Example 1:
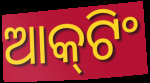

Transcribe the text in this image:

ଆକ୍‌ଟିଂ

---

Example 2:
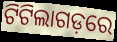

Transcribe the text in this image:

ଟିଟିଲାଗଡ଼ରେ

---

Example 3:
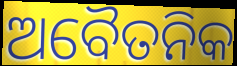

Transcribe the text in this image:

ଅବୈତନିକ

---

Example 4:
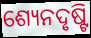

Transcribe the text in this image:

ଶ୍ୟେନଦୃଷ୍ଟି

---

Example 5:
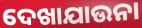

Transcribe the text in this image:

ଦେଖାଯାଉନା